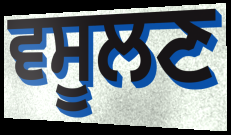
ਵਸੂਲਣ